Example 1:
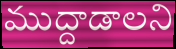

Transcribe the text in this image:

ముద్దాడాలని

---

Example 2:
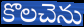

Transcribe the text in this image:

కొలచెను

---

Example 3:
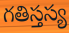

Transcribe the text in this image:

గతిస్తస్య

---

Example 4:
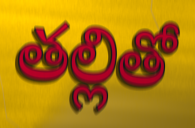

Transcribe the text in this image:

తల్లితో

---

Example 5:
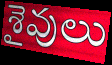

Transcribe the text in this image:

శైవులు